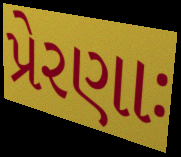
પ્રેરણાઃ